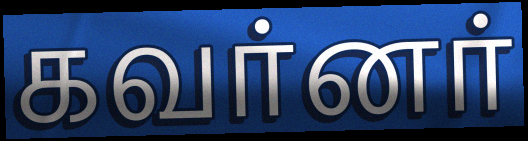
கவர்னர்